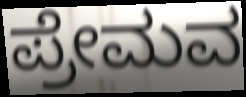
ಪ್ರೇಮವ